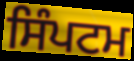
ਸਿੰਪਟਮ